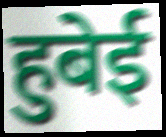
हुबेई